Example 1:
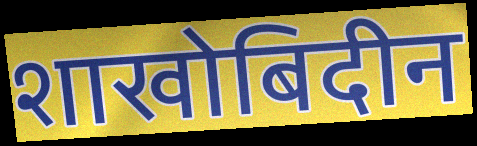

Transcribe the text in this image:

शाखोबिदीन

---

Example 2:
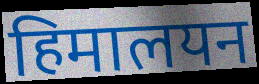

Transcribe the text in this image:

हिमालयन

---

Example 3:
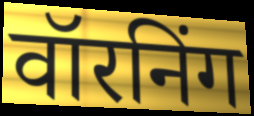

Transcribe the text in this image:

वॉरनिंग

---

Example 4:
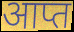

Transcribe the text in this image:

आप्त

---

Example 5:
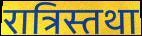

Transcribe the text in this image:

रात्रिस्तथा